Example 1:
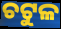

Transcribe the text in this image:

ଚଟୁଳ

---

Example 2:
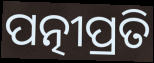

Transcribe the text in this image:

ପତ୍ନୀପ୍ରତି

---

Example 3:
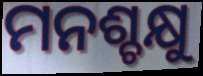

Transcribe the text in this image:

ମନଶ୍ଚକ୍ଷୁ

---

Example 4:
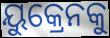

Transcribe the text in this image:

ୟୁକ୍ରେନକୁ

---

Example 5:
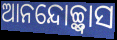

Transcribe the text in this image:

ଆନନ୍ଦୋଚ୍ଛ୍ୱାସ